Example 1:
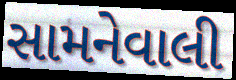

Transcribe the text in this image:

સામનેવાલી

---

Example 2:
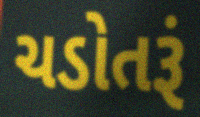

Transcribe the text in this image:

ચડોતરૂં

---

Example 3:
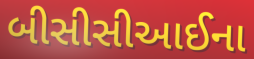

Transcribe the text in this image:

બીસીસીઆઈના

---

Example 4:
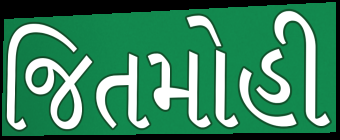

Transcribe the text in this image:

જિતમોહી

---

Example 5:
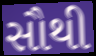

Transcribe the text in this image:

સૌથી